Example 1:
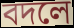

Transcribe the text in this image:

বদলে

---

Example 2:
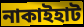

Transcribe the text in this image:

নাকাইহাট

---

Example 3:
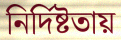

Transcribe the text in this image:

নির্দিষ্টতায়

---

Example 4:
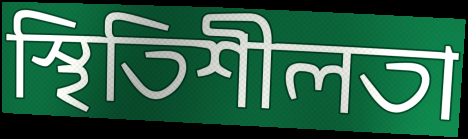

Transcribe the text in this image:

স্থিতিশীলতা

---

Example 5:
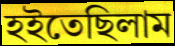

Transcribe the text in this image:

হইতেছিলাম